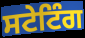
ਸਟੇਟਿੰਗ